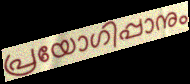
പ്രയോഗിപ്പാനും